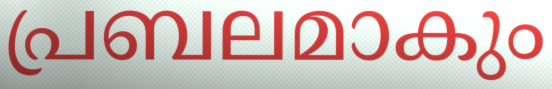
പ്രബലമാകും